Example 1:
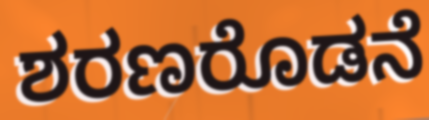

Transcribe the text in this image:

ಶರಣರೊಡನೆ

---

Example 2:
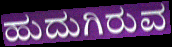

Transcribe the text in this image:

ಹುದುಗಿರುವ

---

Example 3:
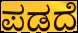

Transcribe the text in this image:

ಪಡದೆ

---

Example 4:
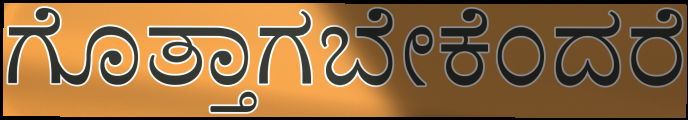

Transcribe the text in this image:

ಗೊತ್ತಾಗಬೇಕೆಂದರೆ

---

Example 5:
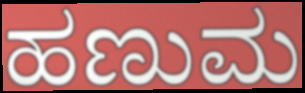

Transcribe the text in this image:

ಹಣುಮ